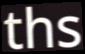
ths